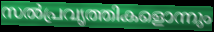
സൽപ്രവൃത്തികളൊന്നും